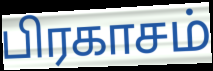
பிரகாசம்